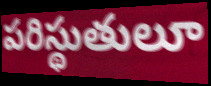
పరిస్థుతులూ